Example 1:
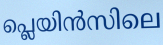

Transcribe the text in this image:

പ്ലെയിൻസിലെ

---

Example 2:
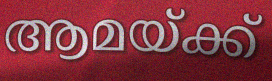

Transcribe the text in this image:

ആമയ്ക്ക്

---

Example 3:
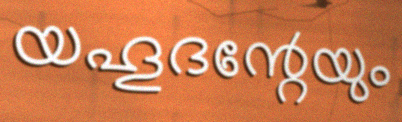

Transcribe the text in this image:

യഹൂദന്റേയും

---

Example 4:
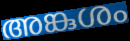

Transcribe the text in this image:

അങ്കുശം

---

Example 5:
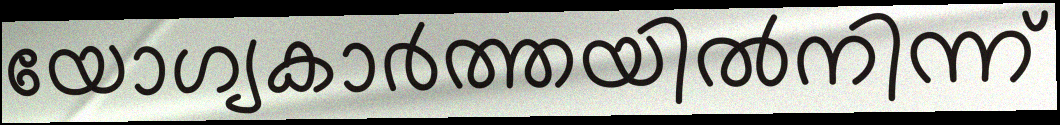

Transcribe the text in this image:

യോഗ്യകാർത്തയിൽനിന്ന്